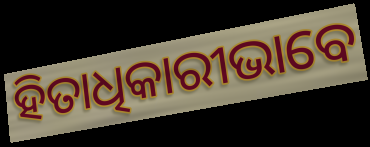
ହିତାଧିକାରୀଭାବେ